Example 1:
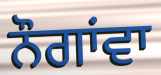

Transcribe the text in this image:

ਨੌਗਾਂਵਾ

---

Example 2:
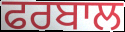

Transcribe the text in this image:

ਫਰਬਾਲ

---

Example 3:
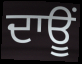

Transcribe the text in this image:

ਦਾਊਂ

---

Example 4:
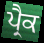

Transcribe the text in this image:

ਪ੍ਰੈਕ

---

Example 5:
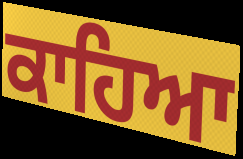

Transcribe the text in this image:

ਕਾਹਿਆ